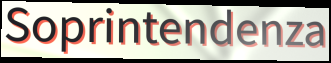
Soprintendenza